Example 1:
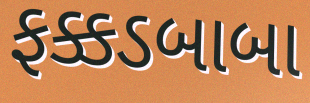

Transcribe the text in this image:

ફક્કડબાબા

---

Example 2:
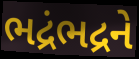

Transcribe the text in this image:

ભદ્રંભદ્રને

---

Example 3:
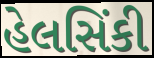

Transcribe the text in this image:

હેલસિંકી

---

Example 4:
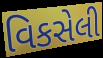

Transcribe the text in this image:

વિકસેલી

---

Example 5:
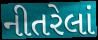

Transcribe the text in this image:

નીતરેલાં